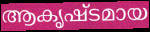
ആകൃഷ്ടമായ